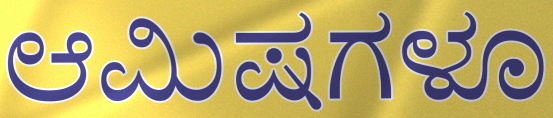
ಆಮಿಷಗಳೂ